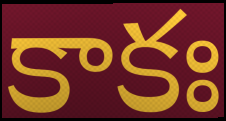
కాకః